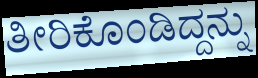
ತೀರಿಕೊಂಡಿದ್ದನ್ನು